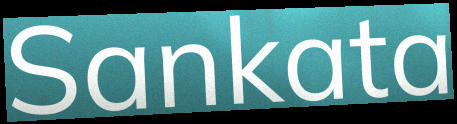
Sankata